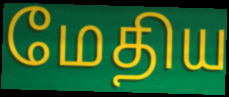
மேதிய